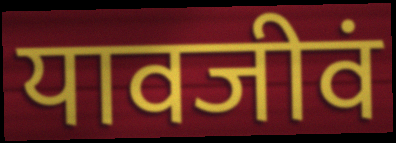
यावजीवं